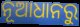
ନୂଆଧାନରୁ